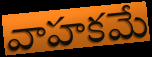
వాహకమే